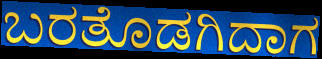
ಬರತೊಡಗಿದಾಗ